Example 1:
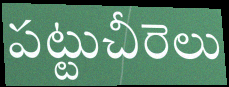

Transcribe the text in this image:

పట్టుచీరెలు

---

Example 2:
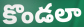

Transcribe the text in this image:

కొండలా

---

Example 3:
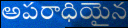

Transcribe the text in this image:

అపరాధియైన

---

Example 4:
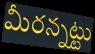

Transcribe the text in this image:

మీరన్నట్టు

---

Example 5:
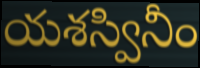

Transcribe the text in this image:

యశస్వినీం